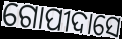
ଗୋପୀଦାସେ